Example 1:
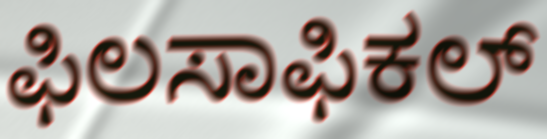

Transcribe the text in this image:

ಫಿಲಸಾಫಿಕಲ್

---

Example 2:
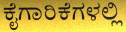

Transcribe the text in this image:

ಕೈಗಾರಿಕೆಗಳಲ್ಲಿ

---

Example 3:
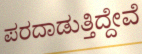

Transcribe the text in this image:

ಪರದಾಡುತ್ತಿದ್ದೇವೆ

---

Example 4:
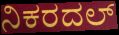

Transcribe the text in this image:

ನಿಕರದಲ್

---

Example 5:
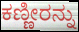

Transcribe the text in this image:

ಕಣ್ಣೀರನ್ನು